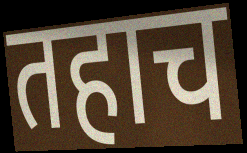
तहाच